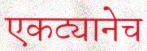
एकट्यानेच